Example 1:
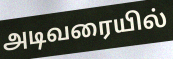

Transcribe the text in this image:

அடிவரையில்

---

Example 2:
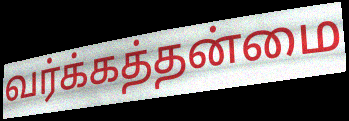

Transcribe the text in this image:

வர்க்கத்தன்மை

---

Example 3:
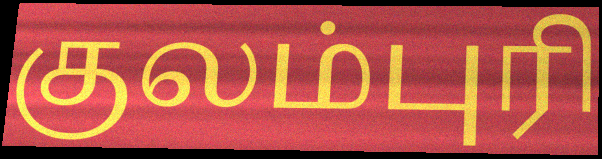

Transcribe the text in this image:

குலம்புரி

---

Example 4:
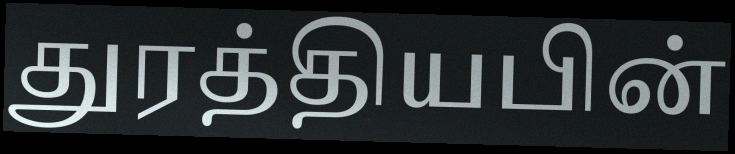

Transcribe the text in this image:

துரத்தியபின்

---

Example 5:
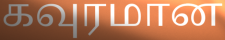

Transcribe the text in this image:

கவுரமான